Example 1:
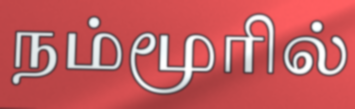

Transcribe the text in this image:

நம்மூரில்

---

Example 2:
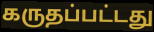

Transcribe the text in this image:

கருதப்பட்டது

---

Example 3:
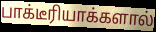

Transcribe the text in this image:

பாக்டீரியாக்களால்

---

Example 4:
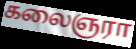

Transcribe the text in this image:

கலைஞரா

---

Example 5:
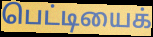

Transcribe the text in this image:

பெட்டியைக்